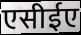
एसीईए